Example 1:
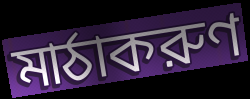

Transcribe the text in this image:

মাঠাকরুণ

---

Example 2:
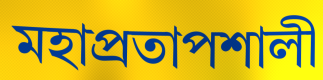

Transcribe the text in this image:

মহাপ্রতাপশালী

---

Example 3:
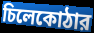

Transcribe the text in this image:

চিলেকোঠার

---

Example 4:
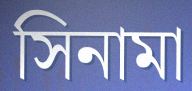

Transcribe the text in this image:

সিনামা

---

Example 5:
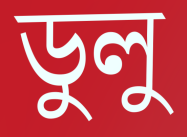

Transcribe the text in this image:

ডুলু